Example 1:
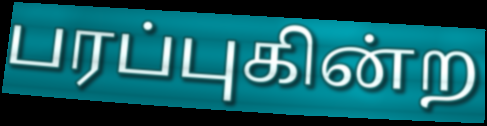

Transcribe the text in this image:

பரப்புகின்ற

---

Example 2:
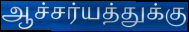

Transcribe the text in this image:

ஆச்சர்யத்துக்கு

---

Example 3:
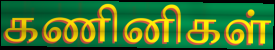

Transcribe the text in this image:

கணினிகள்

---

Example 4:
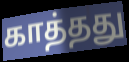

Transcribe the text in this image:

காத்தது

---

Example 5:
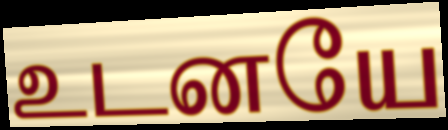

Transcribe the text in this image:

உடனயே